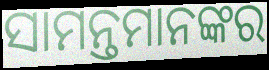
ସାମନ୍ତମାନଙ୍କର